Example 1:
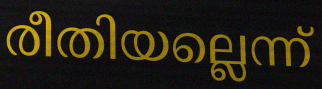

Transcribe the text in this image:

രീതിയല്ലെന്ന്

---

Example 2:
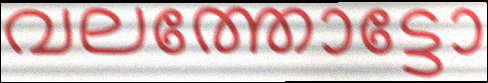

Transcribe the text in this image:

വലത്തോട്ടോ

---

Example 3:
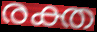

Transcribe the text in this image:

രക്ത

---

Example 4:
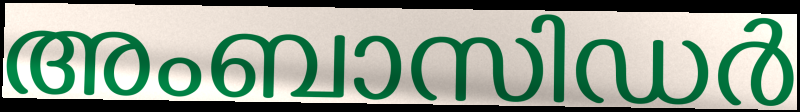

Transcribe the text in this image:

അംബാസിഡർ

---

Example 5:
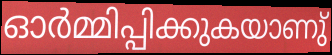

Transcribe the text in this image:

ഓർമ്മിപ്പിക്കുകയാണു്